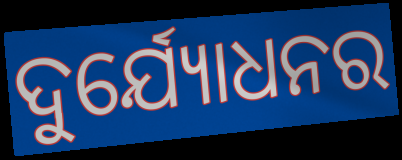
ଦୁର୍ଯ୍ୟୋଧନର